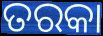
ତରକା